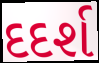
દદર્શ